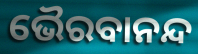
ଭୈରବାନନ୍ଦ